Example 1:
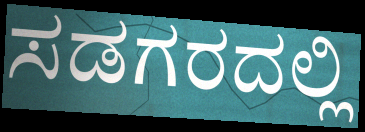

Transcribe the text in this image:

ಸಡಗರದಲ್ಲಿ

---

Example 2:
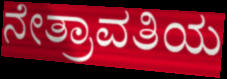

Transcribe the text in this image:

ನೇತ್ರಾವತಿಯ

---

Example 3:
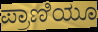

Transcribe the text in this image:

ಪ್ರಾಣಿಯೂ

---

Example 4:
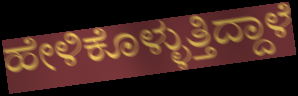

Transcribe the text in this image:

ಹೇಳಿಕೊಳ್ಳುತ್ತಿದ್ದಾಳೆ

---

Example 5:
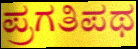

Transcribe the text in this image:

ಪ್ರಗತಿಪಥ